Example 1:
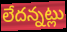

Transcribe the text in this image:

లేదన్నట్లు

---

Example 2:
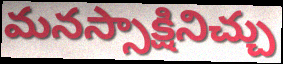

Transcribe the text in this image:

మనస్సాక్షినిచ్చు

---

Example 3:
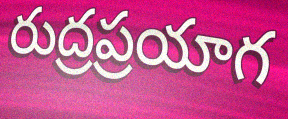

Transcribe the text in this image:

రుద్రప్రయాగ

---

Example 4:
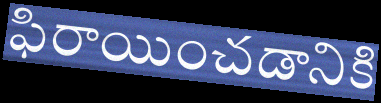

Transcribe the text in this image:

ఫిరాయించడానికి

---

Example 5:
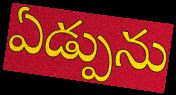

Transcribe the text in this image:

ఏడ్పును